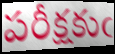
పరీక్షకుఁ